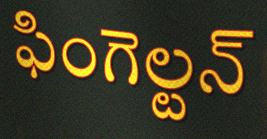
ఫింగెల్టన్